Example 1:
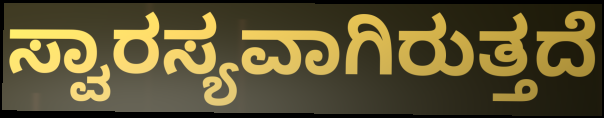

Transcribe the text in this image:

ಸ್ವಾರಸ್ಯವಾಗಿರುತ್ತದೆ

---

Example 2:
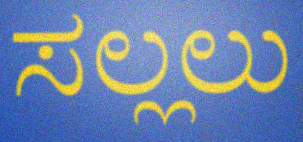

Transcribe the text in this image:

ಸಲ್ಲಲು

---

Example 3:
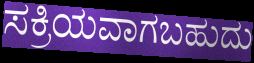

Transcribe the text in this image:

ಸಕ್ರಿಯವಾಗಬಹುದು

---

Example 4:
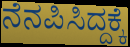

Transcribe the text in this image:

ನೆನಪಿಸಿದ್ದಕ್ಕೆ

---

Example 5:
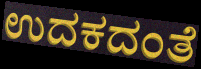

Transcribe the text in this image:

ಉದಕದಂತೆ